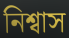
নিশ্বাস